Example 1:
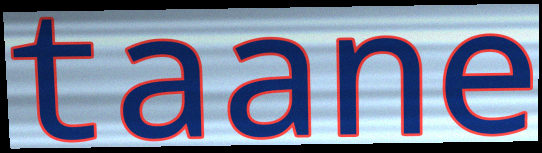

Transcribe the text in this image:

taane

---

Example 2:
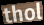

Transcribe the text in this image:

thol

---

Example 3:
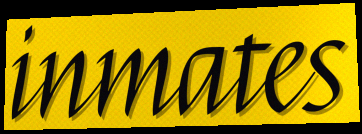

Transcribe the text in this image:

inmates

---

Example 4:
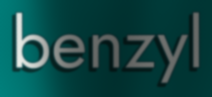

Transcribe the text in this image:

benzyl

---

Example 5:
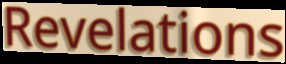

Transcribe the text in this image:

Revelations